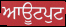
ਆਊਟਪੁਟ